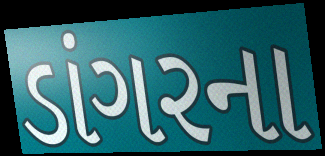
ડાંગરના